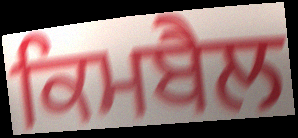
ਕਿਮਬੈਲ